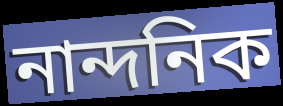
নান্দনিক